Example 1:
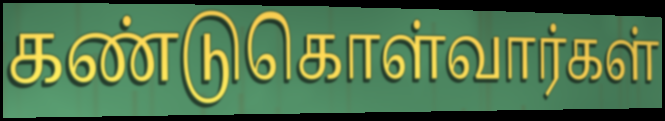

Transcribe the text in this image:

கண்டுகொள்வார்கள்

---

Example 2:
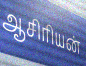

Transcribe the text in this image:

ஆசிரியன்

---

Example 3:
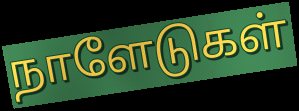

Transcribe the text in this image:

நாளேடுகள்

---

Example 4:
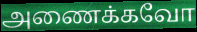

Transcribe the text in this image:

அணைக்கவோ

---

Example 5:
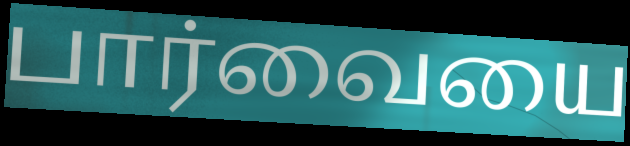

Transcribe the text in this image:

பார்வையை